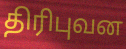
திரிபுவன